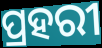
ପ୍ରହରୀ